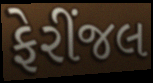
ફેરીંજલ